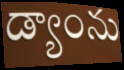
డ్యాంను